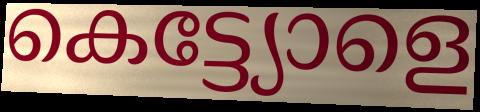
കെട്ട്യോളെ